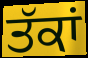
ਤੱਕਾਂ